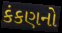
કંકણનો